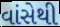
વાંસેથી